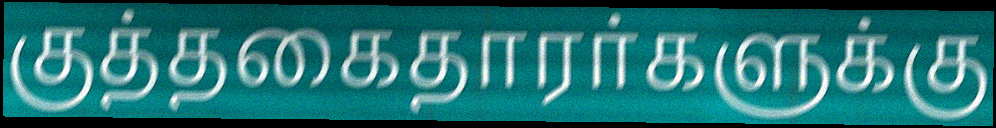
குத்தகைதாரர்களுக்கு